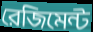
রেজিমেন্ট